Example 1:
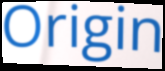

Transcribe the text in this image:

Origin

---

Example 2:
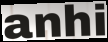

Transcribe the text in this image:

anhi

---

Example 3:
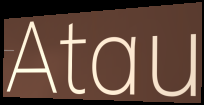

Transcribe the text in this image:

Atau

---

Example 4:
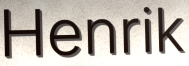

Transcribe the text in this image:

Henrik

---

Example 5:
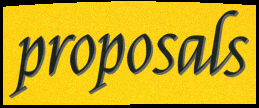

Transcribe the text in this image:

proposals